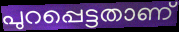
പുറപ്പെട്ടതാണ്